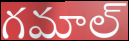
గమాల్